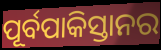
ପୂର୍ବପାକିସ୍ତାନର